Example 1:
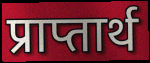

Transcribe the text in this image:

प्राप्तार्थ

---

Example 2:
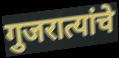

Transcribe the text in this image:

गुजरात्यांचे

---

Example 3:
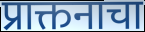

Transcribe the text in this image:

प्राक्तनाचा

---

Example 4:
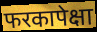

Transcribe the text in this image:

फरकापेक्षा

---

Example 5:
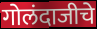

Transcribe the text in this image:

गोलंदाजीचे